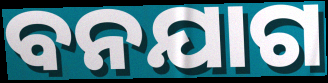
ବନଯାଗ